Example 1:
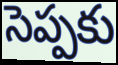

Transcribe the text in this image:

సెప్పకు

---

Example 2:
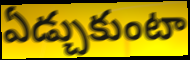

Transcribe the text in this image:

ఏడ్చుకుంటా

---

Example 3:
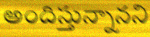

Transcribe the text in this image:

అందిస్తున్నానని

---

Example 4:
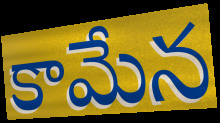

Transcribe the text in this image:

కామేన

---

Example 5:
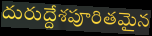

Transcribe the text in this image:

దురుద్దేశపూరితమైన